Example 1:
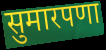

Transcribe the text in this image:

सुमारपणा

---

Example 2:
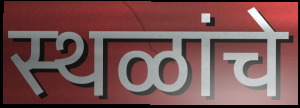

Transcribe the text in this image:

स्थळांचे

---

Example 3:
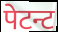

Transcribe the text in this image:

पेटन्ट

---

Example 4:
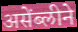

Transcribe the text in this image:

असेंब्लीने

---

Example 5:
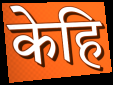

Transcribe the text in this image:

केहि